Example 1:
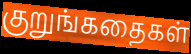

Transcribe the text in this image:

குறுங்கதைகள்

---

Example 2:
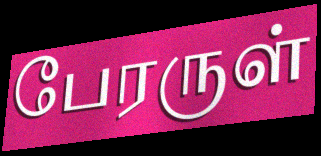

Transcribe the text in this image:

பேரருள்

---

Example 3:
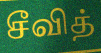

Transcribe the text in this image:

சீவித்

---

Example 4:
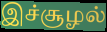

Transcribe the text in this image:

இச்சூழல்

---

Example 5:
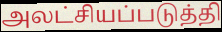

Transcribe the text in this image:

அலட்சியப்படுத்தி